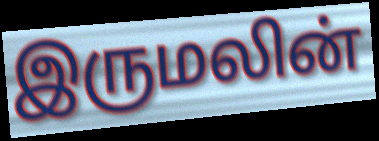
இருமலின்